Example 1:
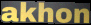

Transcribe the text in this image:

akhon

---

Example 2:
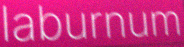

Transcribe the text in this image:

laburnum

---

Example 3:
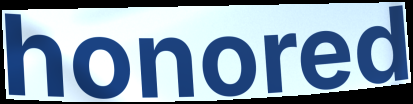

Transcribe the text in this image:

honored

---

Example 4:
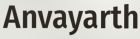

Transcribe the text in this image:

Anvayarth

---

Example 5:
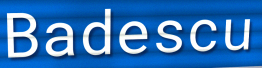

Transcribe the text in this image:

Badescu